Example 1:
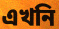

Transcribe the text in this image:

এখনি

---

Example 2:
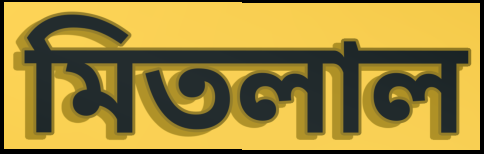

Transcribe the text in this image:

মিতলাল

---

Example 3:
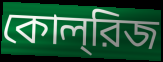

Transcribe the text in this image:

কোল্‌রিজ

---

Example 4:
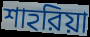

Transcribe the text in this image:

শাহরিয়া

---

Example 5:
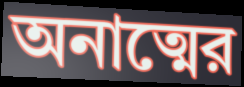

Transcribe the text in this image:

অনাত্মের